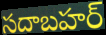
సదాబహర్